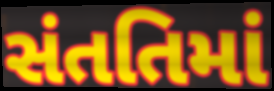
સંતતિમાં